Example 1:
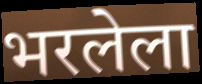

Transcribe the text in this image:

भरलेला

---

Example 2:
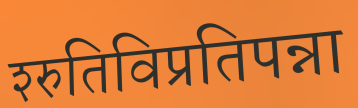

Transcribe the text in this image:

श्रुतिविप्रतिपन्ना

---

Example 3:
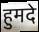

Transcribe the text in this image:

हुमदे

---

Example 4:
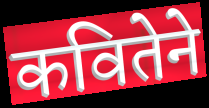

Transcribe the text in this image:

कवितेने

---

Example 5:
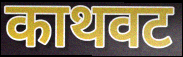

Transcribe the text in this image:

काथवट